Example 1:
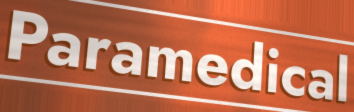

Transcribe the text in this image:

Paramedical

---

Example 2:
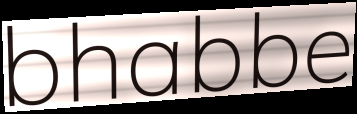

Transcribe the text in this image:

bhabbe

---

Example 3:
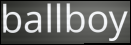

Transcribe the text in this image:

ballboy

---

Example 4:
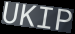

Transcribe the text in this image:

UKIP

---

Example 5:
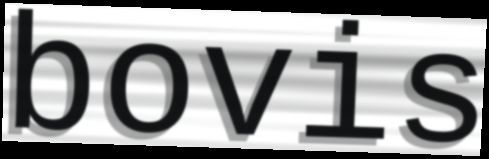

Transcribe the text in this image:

bovis